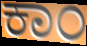
ಕಾಂ